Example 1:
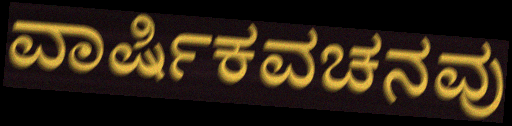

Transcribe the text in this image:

ವಾರ್ಷಿಕವಚನವು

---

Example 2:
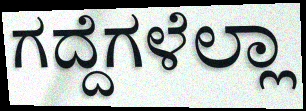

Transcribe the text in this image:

ಗದ್ದೆಗಳೆಲ್ಲಾ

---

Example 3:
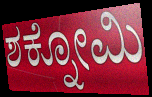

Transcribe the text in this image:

ಶಕ್ನೋಮಿ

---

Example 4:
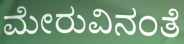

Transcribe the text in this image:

ಮೇರುವಿನಂತೆ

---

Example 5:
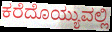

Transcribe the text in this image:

ಕರೆದೊಯ್ಯುವಲ್ಲಿ